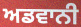
ਅਡਵਾਨੀ